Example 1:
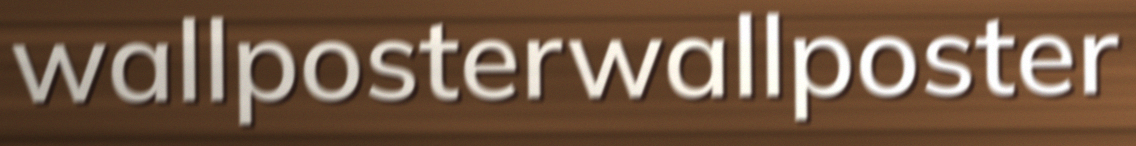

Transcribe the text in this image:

wallposterwallposter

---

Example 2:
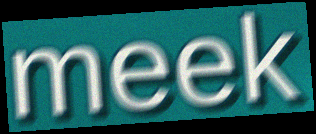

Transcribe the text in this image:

meek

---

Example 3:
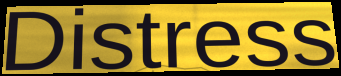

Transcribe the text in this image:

Distress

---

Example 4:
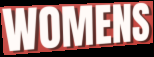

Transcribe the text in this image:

WOMENS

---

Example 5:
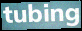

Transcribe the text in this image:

tubing